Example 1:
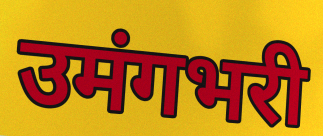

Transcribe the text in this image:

उमंगभरी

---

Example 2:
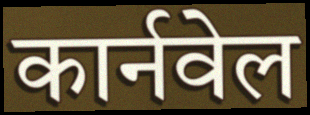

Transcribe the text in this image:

कार्नवेल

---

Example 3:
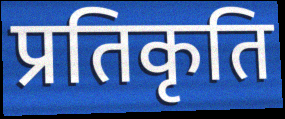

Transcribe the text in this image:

प्रतिकृति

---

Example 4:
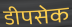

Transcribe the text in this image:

डीपसेक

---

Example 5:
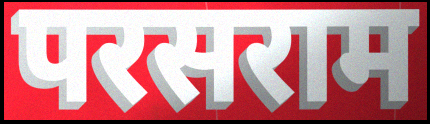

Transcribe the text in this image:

परसराम